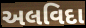
અલવિદા